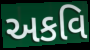
અકવિ